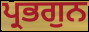
ਪ੍ਰਭਗੁਨ